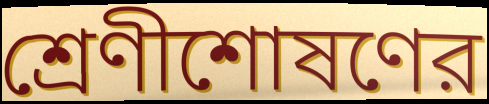
শ্রেণীশোষণের